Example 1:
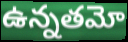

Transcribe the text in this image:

ఉన్నతమో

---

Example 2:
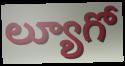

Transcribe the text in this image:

ల్యూగో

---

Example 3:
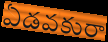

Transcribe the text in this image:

ఏడవకురా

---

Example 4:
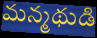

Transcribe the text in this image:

మన్మథుడి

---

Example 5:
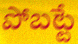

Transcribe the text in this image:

పోబట్టే